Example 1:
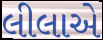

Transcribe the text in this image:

લીલાએ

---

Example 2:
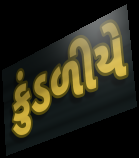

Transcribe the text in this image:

કુંડળીયે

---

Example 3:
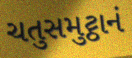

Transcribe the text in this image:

ચતુસમુટ્ઠાનં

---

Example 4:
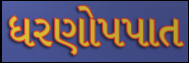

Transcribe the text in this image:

ધરણોપપાત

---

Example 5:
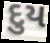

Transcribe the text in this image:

દુય